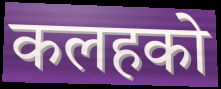
कलहको